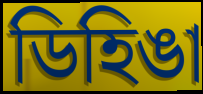
ডিহিঙা